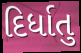
દિર્ધાતુ